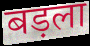
बड़ला